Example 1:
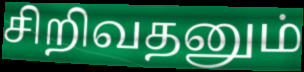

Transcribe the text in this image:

சிறிவதனும்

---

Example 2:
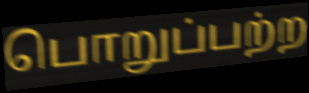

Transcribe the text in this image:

பொறுப்பற்ற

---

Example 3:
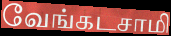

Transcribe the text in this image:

வேங்கடசாமி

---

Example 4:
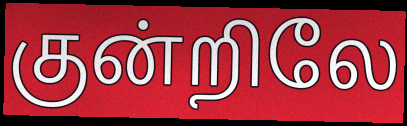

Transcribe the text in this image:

குன்றிலே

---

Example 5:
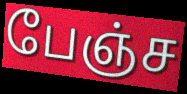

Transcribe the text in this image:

பேஞ்ச